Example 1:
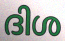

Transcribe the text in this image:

ദിശ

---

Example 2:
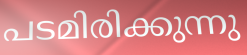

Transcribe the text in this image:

പടമിരിക്കുന്നു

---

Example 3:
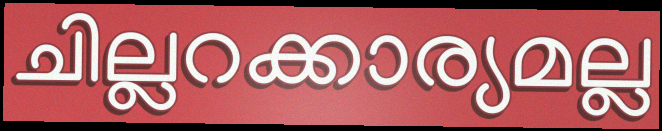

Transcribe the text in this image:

ചില്ലറക്കാര്യമല്ല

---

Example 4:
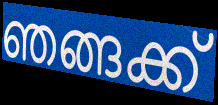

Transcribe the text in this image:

ഞങ്ങക്ക്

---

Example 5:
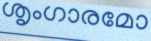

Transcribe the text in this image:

ശൃംഗാരമോ